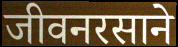
जीवनरसाने